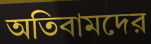
অতিবামদের